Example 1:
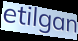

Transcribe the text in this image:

etilgan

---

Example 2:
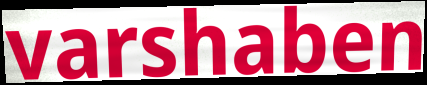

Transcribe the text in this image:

varshaben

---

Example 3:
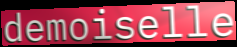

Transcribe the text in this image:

demoiselle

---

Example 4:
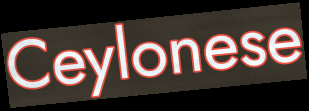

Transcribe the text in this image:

Ceylonese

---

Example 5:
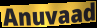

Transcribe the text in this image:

Anuvaad